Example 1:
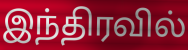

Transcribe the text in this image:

இந்திரவில்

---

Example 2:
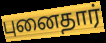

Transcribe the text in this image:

புனைதார்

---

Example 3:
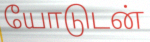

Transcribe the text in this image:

யோடுடன்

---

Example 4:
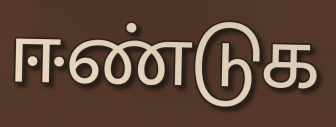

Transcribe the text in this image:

ஈண்டுக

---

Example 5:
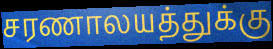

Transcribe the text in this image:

சரணாலயத்துக்கு